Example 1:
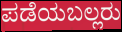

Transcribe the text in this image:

ಪಡೆಯಬಲ್ಲರು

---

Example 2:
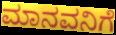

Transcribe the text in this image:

ಮಾನವನಿಗೆ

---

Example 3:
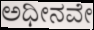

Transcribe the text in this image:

ಅಧೀನವೇ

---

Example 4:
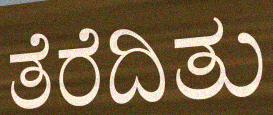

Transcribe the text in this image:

ತೆರೆದಿತು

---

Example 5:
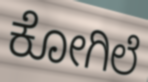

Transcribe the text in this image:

ಕೋಗಿಲೆ